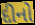
દીનો